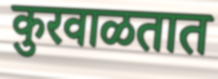
कुरवाळतात